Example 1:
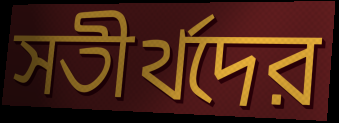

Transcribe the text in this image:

সতীর্থদের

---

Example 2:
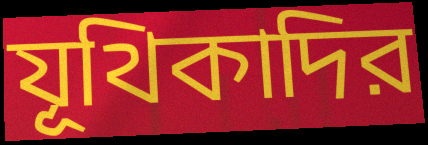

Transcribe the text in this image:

যূথিকাদির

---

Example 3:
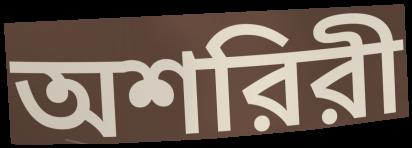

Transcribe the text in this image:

অশরিরী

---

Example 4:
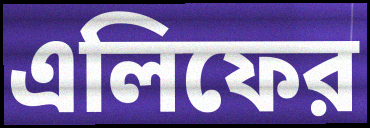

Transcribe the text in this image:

এলিফের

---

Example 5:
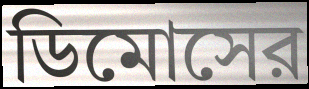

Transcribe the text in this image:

ডিমোসের